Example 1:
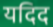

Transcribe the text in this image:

यदिद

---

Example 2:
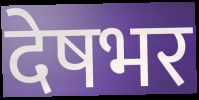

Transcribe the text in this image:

देषभर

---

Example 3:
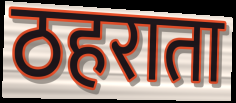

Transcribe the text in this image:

ठहराता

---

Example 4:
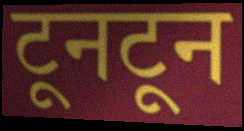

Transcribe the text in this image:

टूनटून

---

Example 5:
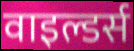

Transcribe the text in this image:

वाइल्डर्स